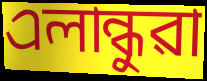
এলান্ধুৱা